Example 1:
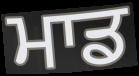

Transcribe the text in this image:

ਮਾਡ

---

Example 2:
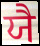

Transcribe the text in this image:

ਯੈ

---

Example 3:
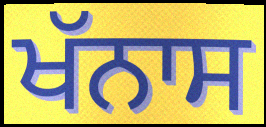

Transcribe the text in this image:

ਖੱਨਾਸ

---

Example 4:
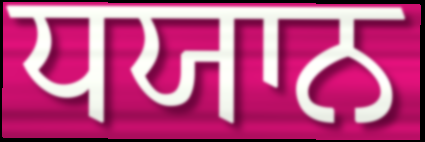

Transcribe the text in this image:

ਧਯਾਨ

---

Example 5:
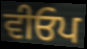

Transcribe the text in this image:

ਵੀਓਪ